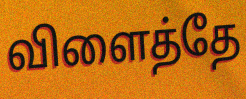
விளைத்தே